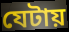
যেটায়